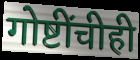
गोष्टींचीही